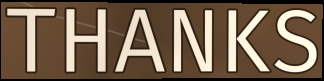
THANKS